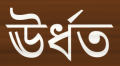
ঊৰ্ধত